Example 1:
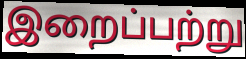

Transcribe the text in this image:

இறைப்பற்று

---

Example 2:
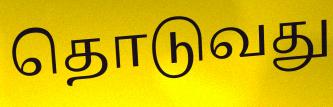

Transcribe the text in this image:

தொடுவது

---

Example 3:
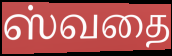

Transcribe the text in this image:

ஸ்வதை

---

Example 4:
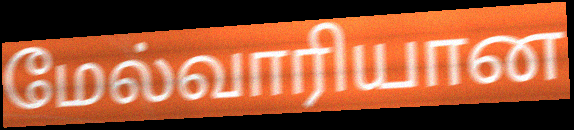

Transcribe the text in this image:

மேல்வாரியான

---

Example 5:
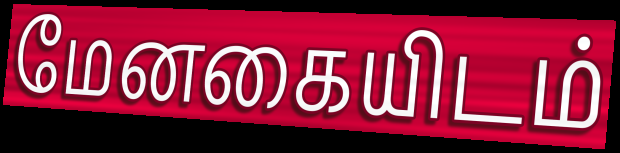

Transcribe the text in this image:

மேனகையிடம்